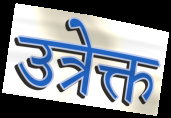
उत्रेक्त